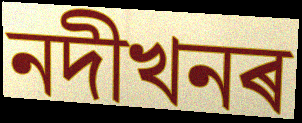
নদীখনৰ